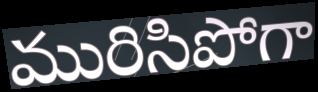
మురిసిపోగా